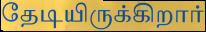
தேடியிருக்கிறார்